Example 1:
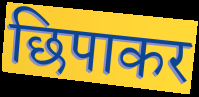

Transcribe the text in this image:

छिपाकर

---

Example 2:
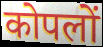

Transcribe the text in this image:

कोपलों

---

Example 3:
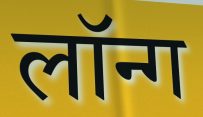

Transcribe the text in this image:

लॉन्ग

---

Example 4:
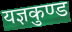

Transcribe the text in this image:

यज्ञकुण्ड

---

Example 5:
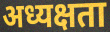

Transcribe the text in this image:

अध्यक्षता